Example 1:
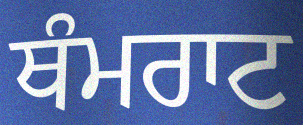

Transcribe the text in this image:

ਥੰਮਰਾਟ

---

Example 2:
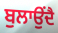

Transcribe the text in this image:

ਬੁਲਾਉਂਦੈ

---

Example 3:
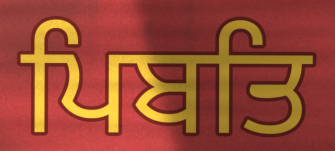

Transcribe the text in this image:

ਪਿਬਤਿ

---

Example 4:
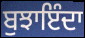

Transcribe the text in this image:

ਬੁਝਾਇੰਦਾ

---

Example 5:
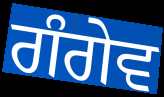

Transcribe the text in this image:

ਗੰਗੇਵ